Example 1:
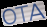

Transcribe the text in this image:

OTA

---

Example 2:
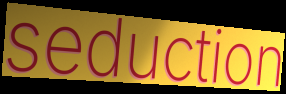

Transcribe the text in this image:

seduction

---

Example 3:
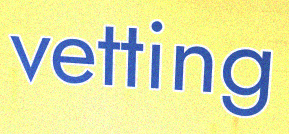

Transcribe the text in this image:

vetting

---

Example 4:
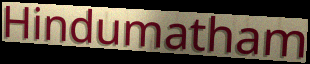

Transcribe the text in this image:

Hindumatham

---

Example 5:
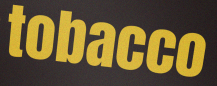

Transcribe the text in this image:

tobacco